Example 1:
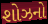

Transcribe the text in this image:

શોઝનો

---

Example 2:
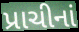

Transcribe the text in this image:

પ્રાચીનાં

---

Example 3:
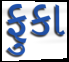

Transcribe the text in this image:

ફુકા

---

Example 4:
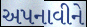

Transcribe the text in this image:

અપનાવીને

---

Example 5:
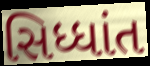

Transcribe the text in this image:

સિધ્ધાંત